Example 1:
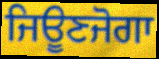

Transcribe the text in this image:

ਜਿਊਣਜੋਗਾ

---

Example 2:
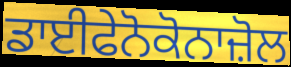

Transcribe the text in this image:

ਡਾਈਫੇਨੋਕੋਨਾਜ਼ੋਲ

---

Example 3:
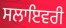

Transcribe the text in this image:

ਸਲਾਇਵਰੀ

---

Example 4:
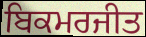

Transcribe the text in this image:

ਬਿਕਮਰਜੀਤ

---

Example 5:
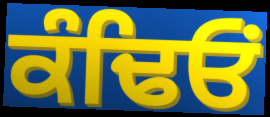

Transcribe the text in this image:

ਕੰਢਿਓਂ